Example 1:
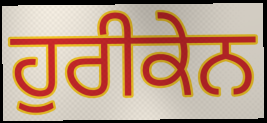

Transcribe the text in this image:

ਹੁਰੀਕੇਨ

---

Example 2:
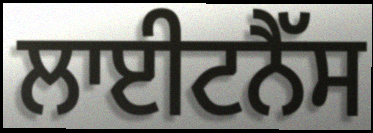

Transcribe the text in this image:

ਲਾਈਟਨੈੱਸ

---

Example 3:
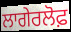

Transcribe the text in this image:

ਲਾਗੇਰਲੋਫ਼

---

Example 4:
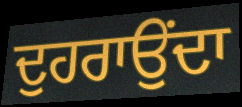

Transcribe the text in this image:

ਦੁਹਰਾਉਂਦਾ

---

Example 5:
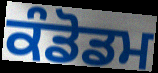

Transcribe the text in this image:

ਕੰਡੋਡਮ